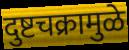
दुष्टचक्रामुळे